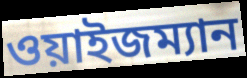
ওয়াইজম্যান